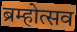
ब्रम्होत्सव